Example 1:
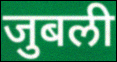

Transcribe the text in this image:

जुबली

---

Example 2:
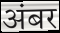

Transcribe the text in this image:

अंबर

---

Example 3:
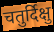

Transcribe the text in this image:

चतुर्दिक्षु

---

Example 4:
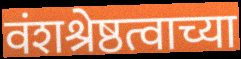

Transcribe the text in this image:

वंशश्रेष्ठत्वाच्या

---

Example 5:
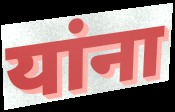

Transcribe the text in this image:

यांना